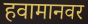
हवामानवर